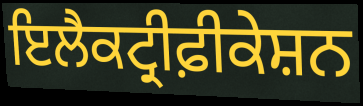
ਇਲੈਕਟ੍ਰੀਫ਼ੀਕੇਸ਼ਨ